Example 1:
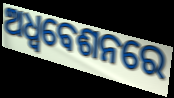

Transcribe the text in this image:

ଅଧ୍ଵବେଶନରେ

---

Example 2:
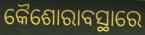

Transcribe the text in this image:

କୈଶୋରାବସ୍ଥାରେ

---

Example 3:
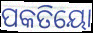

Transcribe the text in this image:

ପକତିୟୋ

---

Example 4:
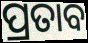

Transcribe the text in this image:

ପ୍ରତାବ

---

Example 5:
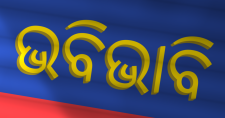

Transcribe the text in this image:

ଭବିଭାବି